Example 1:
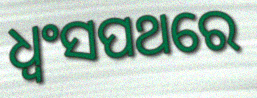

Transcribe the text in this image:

ଧ୍ବଂସପଥରେ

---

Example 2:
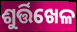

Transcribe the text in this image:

ଶୁର୍ତ୍ତିଖେଳ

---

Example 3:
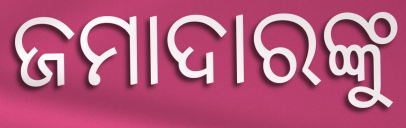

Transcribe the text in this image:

ଜମାଦାରଙ୍କୁ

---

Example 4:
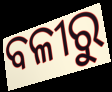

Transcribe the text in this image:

ବଳୀରୁ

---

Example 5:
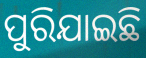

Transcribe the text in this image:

ପୁରିଯାଇଛି